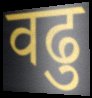
वढु